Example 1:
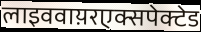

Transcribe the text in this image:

लाइववाय़रएक्सपेक्टेड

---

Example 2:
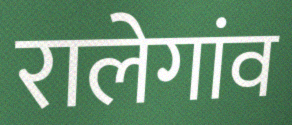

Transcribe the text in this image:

रालेगांव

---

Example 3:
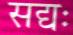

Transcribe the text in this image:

सद्यः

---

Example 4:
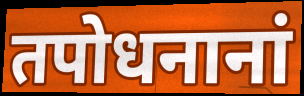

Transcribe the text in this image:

तपोधनानां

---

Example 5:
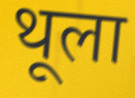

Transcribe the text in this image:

थूला